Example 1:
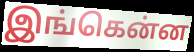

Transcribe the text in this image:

இங்கென்ன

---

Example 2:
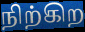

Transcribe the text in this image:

நிற்கிற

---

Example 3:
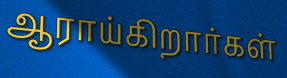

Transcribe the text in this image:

ஆராய்கிறார்கள்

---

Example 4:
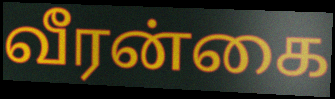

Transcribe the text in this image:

வீரன்கை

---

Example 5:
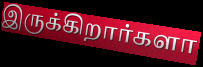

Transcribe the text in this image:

இருக்கிறார்களா